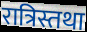
रात्रिस्तथा